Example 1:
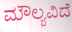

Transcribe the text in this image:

ಮೌಲ್ಯವಿದೆ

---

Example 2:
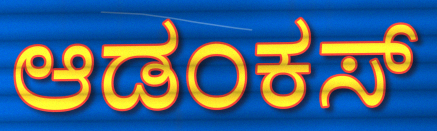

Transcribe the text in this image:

ಆಡಂಕಸ್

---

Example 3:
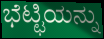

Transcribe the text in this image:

ಭೆಟ್ಟಿಯನ್ನು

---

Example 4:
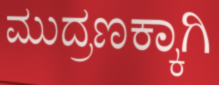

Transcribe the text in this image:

ಮುದ್ರಣಕ್ಕಾಗಿ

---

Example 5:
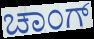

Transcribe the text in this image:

ಚಾಂಗ್